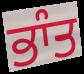
ਭਾੰਤ